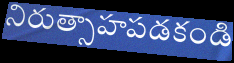
నిరుత్సాహపడకండి